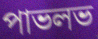
পাভলভ